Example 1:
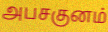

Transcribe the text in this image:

அபசகுனம்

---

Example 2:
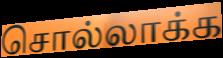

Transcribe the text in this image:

சொல்லாக்க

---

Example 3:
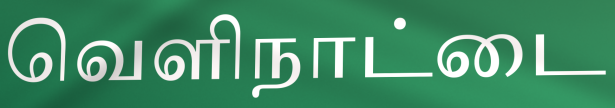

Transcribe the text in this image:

வெளிநாட்டை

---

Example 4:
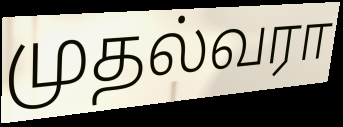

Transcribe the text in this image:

முதல்வரா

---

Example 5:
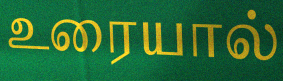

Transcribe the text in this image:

உரையால்